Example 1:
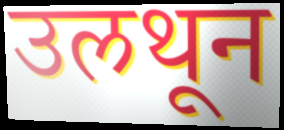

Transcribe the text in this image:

उलथून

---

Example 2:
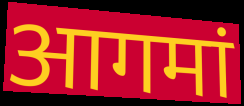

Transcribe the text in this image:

आगमां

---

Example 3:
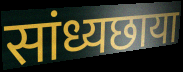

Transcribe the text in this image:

सांध्यछाया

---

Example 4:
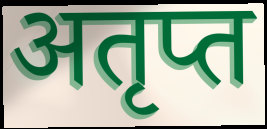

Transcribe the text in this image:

अतृप्त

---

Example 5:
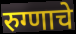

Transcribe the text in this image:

रुग्णाचे